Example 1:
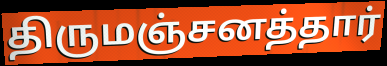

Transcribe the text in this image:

திருமஞ்சனத்தார்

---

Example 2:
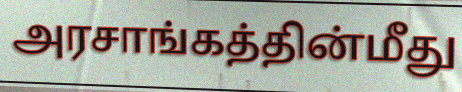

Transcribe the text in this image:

அரசாங்கத்தின்மீது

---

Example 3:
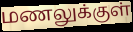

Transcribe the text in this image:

மணலுக்குள்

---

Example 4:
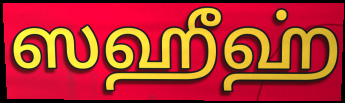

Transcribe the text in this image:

ஸஹீஹ்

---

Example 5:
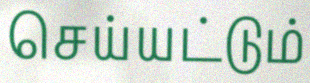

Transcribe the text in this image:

செய்யட்டும்